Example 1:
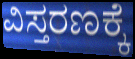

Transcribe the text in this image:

ವಿಸ್ತರಣಕ್ಕೆ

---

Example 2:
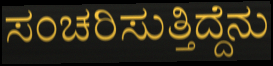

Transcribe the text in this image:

ಸಂಚರಿಸುತ್ತಿದ್ದೆನು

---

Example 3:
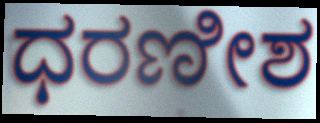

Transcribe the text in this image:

ಧರಣೀಶ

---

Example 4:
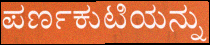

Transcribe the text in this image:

ಪರ್ಣಕುಟಿಯನ್ನು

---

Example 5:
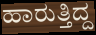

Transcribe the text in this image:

ಹಾರುತ್ತಿದ್ದ